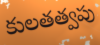
కులతత్వపు